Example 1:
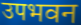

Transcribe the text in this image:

उपभवन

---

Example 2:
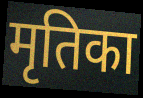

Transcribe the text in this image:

मृतिका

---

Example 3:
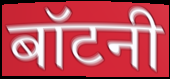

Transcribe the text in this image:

बॉटनी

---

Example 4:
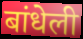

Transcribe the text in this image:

बांधेली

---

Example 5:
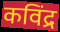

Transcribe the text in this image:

कविंद्र